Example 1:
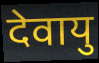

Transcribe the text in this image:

देवायु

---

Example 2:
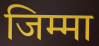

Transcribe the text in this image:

जिम्‍मा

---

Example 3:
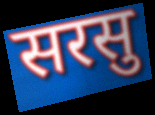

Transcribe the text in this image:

सरसु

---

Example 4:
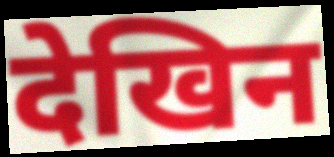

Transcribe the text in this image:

देखिन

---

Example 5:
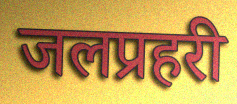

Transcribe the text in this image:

जलप्रहरी